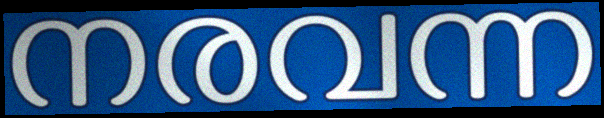
നരവന്ന